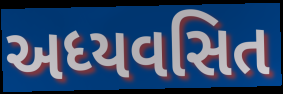
અધ્યવસિત